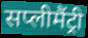
सप्लीमैंट्री